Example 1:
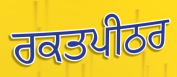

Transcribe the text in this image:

ਰਕਤਪੀਠਰ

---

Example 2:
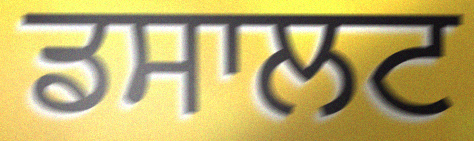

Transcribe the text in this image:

ਡਸਾਲਟ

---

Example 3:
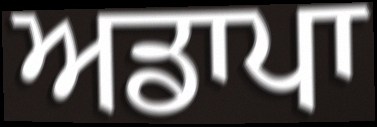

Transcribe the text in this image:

ਅਡਾਪਾ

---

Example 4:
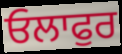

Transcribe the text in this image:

ਓਲਾਫੁਰ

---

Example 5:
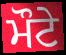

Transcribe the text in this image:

ਮੌਟੇ